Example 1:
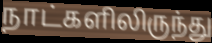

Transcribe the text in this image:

நாட்களிலிருந்து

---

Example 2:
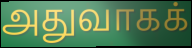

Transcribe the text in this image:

அதுவாகக்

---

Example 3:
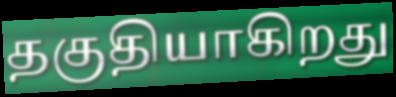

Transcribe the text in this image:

தகுதியாகிறது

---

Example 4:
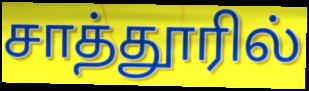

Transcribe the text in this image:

சாத்தூரில்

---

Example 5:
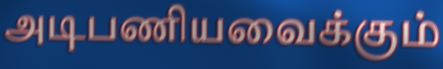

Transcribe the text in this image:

அடிபணியவைக்கும்